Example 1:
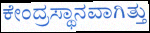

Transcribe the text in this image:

ಕೇಂದ್ರಸ್ಥಾನವಾಗಿತ್ತು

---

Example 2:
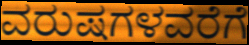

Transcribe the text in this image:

ವರುಷಗಳವರೆಗೆ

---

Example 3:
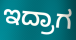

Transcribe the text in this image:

ಇದ್ರಾಗ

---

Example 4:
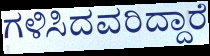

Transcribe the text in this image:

ಗಳಿಸಿದವರಿದ್ದಾರೆ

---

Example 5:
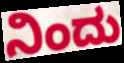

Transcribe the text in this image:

ನಿಂದು